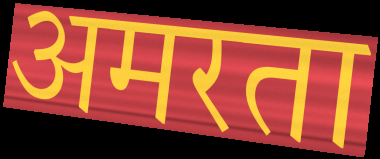
अमरता